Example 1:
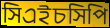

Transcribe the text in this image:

সিএইচসিপি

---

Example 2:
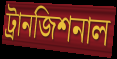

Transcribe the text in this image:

ট্রানজিশনাল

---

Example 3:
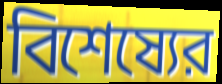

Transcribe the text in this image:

বিশেষ্যের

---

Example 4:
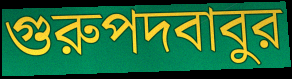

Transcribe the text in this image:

গুরুপদবাবুর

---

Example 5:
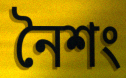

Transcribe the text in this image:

নৈশং